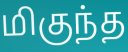
மிகுந்த